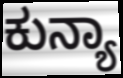
ಕುನ್ಯಾ